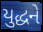
યુદ્ધને